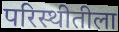
परिस्थीतीला